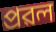
প্ৰৱল